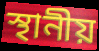
স্থানীয়